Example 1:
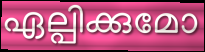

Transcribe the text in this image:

ഏല്പിക്കുമോ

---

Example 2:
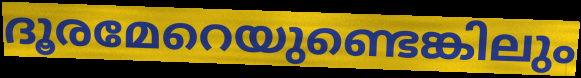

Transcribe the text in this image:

ദൂരമേറെയുണ്ടെങ്കിലും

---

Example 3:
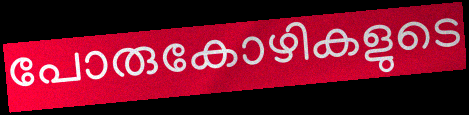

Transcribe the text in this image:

പോരുകോഴികളുടെ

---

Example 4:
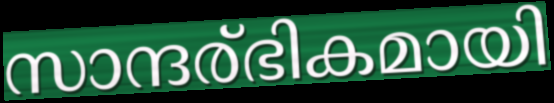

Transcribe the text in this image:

സാന്ദര്ഭികമായി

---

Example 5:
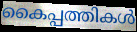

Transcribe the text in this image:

കൈപ്പത്തികൾ